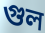
গুল